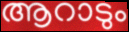
ആറാടും